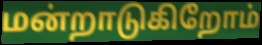
மன்றாடுகிறோம்